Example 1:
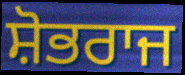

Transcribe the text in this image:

ਸ਼ੋਭਰਾਜ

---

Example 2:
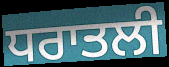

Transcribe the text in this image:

ਧਰਾਤਲੀ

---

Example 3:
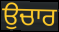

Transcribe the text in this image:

ਉਚਾਰ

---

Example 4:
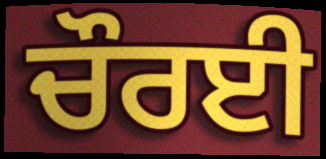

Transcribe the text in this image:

ਚੌਰਈ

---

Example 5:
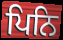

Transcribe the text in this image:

ਪਿਨਿ